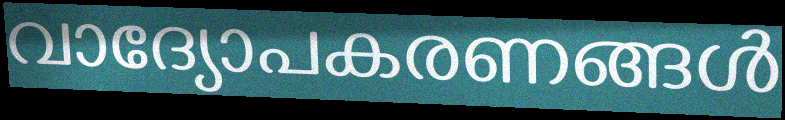
വാദ്യോപകരണങ്ങൾ